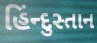
હિંન્દુસ્તાન